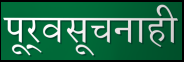
पूर्वसूचनाही